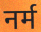
नर्म